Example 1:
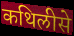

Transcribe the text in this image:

कथिलीसे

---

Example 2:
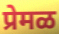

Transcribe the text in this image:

प्रेमळ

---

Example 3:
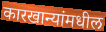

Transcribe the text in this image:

कारखान्यांमधील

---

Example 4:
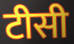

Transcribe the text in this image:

टीसी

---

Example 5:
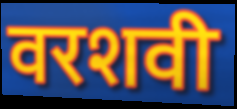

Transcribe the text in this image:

वरशवी